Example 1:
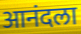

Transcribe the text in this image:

आनंदला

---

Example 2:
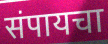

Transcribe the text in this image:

संपायचा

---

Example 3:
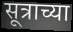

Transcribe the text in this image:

सूत्राच्या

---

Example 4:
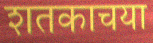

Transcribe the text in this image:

शतकाचया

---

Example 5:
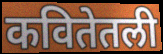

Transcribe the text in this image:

कवितेतली